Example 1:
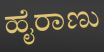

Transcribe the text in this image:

ಹೈರಾಣು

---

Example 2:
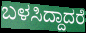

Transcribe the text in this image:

ಬಳಸಿದ್ದಾದರೆ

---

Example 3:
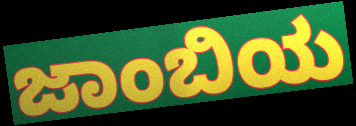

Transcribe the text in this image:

ಜಾಂಬಿಯ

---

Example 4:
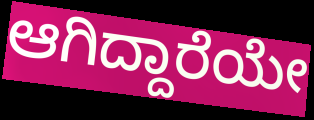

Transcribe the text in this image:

ಆಗಿದ್ದಾರೆಯೇ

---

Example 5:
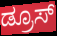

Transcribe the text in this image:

ಡ್ರೂಸ್